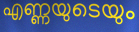
എണ്ണയുടെയും